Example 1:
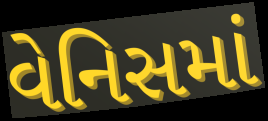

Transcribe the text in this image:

વેનિસમાં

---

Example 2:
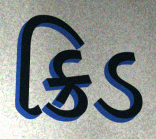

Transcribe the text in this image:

ક્રિડ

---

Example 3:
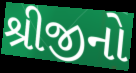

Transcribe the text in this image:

શ્રીજીનો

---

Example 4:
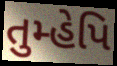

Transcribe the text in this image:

તુમ્હેપિ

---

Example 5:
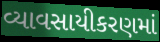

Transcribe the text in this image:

વ્યાવસાયીકરણમાં